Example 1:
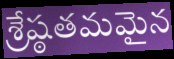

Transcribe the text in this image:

శ్రేష్ఠతమమైన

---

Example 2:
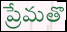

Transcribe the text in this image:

ప్రేమతొ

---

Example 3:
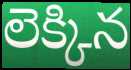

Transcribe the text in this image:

లెక్కిన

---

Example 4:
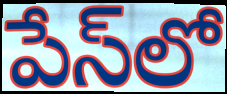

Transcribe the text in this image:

పేస్‌లో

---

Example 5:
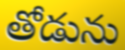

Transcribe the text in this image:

తోడును